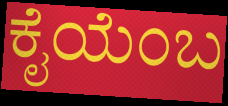
ಕೈಯೆಂಬ